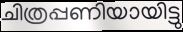
ചിത്രപ്പണിയായിട്ടു